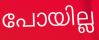
പോയില്ല